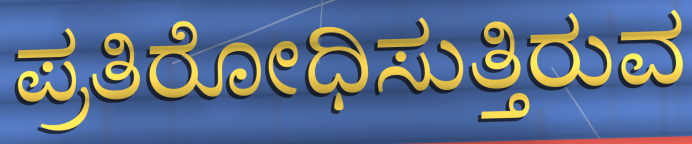
ಪ್ರತಿರೋಧಿಸುತ್ತಿರುವ